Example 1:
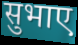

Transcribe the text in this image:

सुभाए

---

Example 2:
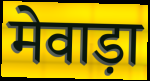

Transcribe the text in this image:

मेवाड़ा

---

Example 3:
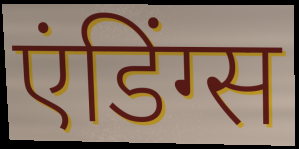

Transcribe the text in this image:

एंडिंग्स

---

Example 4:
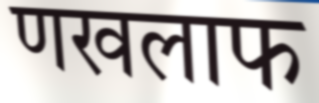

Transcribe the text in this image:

णखलाफ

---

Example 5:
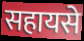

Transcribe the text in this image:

सहायसे